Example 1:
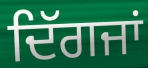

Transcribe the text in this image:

ਦਿੱਗਜਾਂ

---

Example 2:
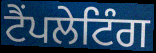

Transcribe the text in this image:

ਟੈਂਪਲੇਟਿੰਗ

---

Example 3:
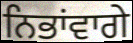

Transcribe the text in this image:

ਨਿਭਾਂਵਾਗੇ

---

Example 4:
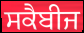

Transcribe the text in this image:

ਸਕੈਬੀਜ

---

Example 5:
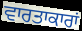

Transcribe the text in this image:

ਵਾਰਤਾਕਾਰਾਂ